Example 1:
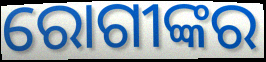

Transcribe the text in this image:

ରୋଗୀଙ୍କର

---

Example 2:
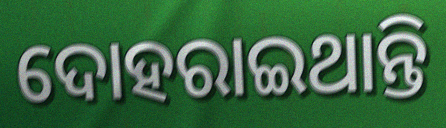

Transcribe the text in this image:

ଦୋହରାଇଥାନ୍ତି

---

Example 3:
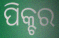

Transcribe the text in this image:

ପିକ୍ଚର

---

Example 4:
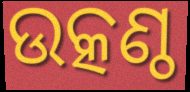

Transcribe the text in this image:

ଉତ୍କଣ୍ଠ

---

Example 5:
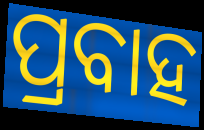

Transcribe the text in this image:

ପ୍ରବାହ